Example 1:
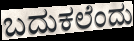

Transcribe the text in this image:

ಬದುಕಲೆಂದು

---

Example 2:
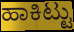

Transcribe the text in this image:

ಹಾಕಿಟ್ಟು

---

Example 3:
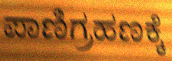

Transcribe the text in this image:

ಪಾಣಿಗ್ರಹಣಕ್ಕೆ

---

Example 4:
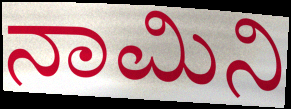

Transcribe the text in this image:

ನಾಮಿನಿ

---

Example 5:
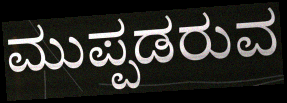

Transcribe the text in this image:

ಮುಪ್ಪಡರುವ